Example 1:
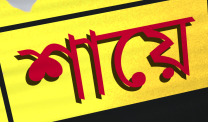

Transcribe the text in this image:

শায়ে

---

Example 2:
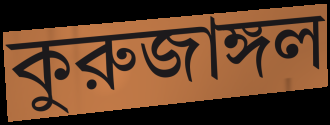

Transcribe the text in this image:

কুরুজাঙ্গল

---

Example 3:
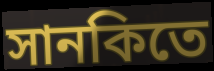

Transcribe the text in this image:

সানকিতে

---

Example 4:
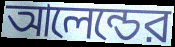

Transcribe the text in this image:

আলেন্ডের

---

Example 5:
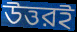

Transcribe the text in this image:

উত্তরই